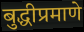
बुद्धीप्रमाणे